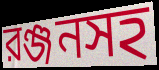
রঞ্জনসহ